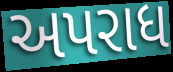
અપરાધ